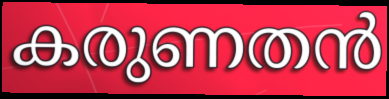
കരുണതൻ